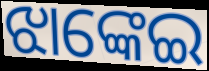
ଝାଙ୍କେଇ